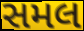
સમલ